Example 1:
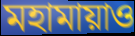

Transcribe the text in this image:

মহামায়াও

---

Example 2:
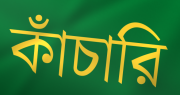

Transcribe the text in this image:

কাঁচারি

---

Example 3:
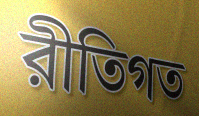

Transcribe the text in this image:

রীতিগত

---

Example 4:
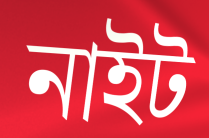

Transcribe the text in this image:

নাইট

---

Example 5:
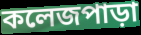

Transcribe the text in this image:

কলেজপাড়া